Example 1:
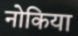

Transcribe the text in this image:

नोकिया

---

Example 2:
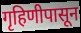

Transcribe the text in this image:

गृहिणीपासून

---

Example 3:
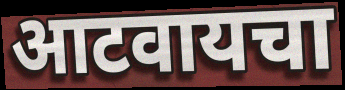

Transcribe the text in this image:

आटवायचा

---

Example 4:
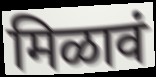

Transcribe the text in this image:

मिळावं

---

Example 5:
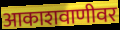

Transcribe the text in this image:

आकाशवाणीवर